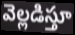
వెల్లడిస్తూ